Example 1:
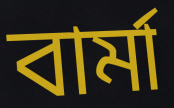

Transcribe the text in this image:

বাৰ্মা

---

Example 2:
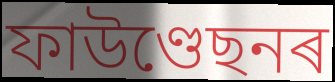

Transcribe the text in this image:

ফাউণ্ডেছনৰ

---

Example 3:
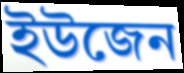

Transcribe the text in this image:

ইউজেন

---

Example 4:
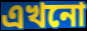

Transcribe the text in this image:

এখনো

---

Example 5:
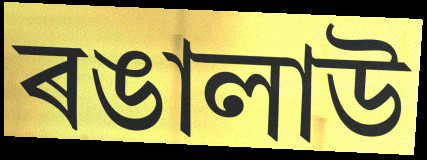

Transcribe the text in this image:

ৰঙালাউ